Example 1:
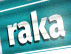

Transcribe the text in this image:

raka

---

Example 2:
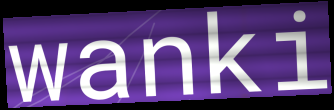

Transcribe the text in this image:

wanki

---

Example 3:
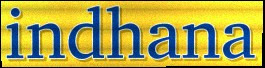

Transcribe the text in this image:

indhana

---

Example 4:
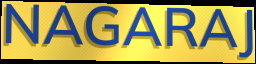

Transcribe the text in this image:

NAGARAJ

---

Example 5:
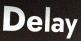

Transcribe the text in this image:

Delay